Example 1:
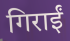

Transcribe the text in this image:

गिराईं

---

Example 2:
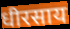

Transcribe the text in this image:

धीरसाय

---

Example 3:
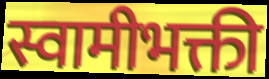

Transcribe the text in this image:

स्वामीभक्ती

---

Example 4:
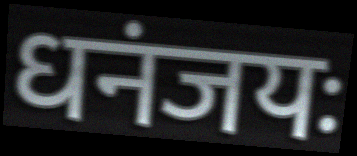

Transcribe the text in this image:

धनंजयः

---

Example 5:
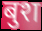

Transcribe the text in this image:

बुश